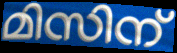
മിസിന്